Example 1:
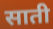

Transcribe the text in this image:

साती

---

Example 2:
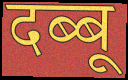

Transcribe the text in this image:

दब्बू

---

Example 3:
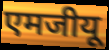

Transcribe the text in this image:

एमजीयू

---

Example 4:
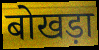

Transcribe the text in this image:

बोखड़ा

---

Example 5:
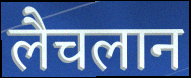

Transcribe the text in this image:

लैचलान